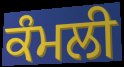
ਕੰਮਲੀ